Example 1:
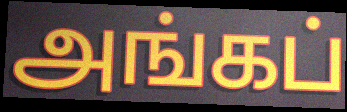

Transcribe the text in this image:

அங்கப்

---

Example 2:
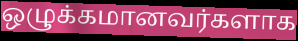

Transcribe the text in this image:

ஒழுக்கமானவர்களாக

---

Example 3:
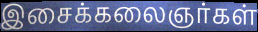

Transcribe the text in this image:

இசைக்கலைஞர்கள்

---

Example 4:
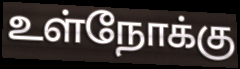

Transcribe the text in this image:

உள்நோக்கு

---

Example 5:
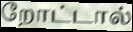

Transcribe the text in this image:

றோட்டால்